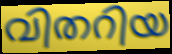
വിതറിയ